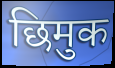
छिमुक